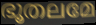
ഭൂതലമേ